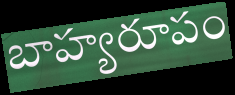
బాహ్యరూపం